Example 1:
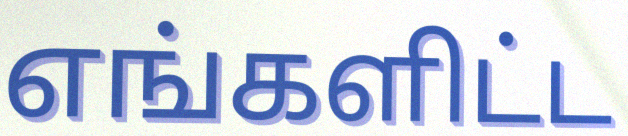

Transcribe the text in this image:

எங்களிட்ட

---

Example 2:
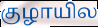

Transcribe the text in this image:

குழாயில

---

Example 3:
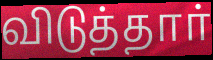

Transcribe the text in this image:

விடுத்தார்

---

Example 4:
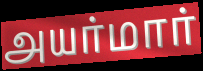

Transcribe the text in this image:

அயர்மார்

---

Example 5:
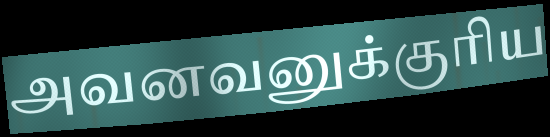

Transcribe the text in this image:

அவனவனுக்குரிய